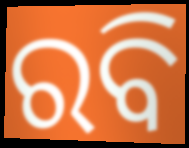
ରବି